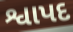
શ્વાપદ